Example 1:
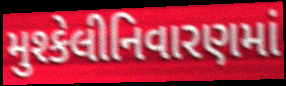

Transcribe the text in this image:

મુશ્કેલીનિવારણમાં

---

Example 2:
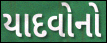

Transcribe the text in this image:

યાદવોનો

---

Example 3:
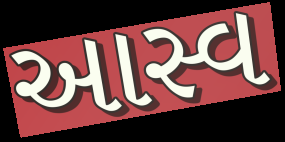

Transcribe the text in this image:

આસ્વ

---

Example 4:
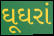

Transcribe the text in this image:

ઘૂઘરાં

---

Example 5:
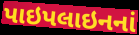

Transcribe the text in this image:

પાઇપલાઇનનાં